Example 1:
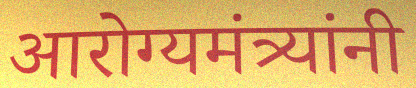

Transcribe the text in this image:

आरोग्यमंत्र्यांनी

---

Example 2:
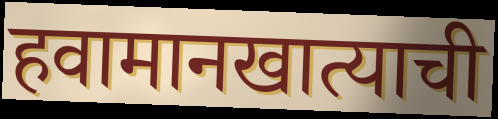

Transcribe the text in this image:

हवामानखात्याची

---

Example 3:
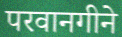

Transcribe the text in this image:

परवानगीने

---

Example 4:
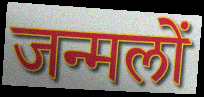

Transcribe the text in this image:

जन्मलों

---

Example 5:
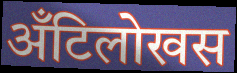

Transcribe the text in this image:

अँटिलोखस